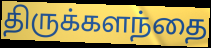
திருக்களந்தை